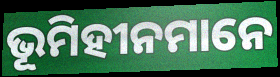
ଭୂମିହୀନମାନେ